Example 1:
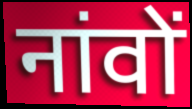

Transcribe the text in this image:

नांवों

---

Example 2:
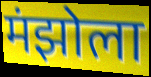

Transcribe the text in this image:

मंझोला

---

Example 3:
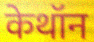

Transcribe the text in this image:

केथॉन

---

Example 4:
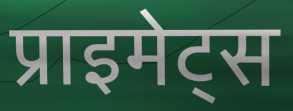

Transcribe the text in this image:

प्राइमेट्स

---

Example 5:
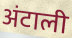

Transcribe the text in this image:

अंटाली